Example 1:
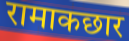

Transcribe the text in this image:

रामाकछार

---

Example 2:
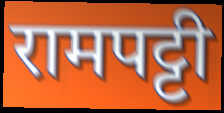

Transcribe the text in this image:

रामपट्टी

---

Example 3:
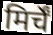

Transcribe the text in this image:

मिर्चें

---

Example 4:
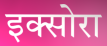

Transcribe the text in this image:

इक्सोरा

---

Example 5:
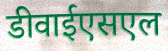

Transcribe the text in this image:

डीवाईएसएल